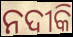
ନଦୀକି